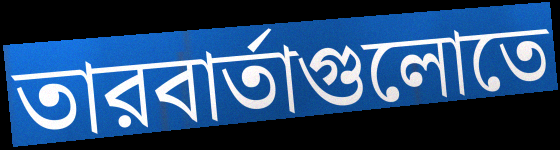
তারবার্তাগুলোতে